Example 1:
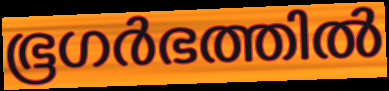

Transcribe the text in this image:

ഭൂഗർഭത്തിൽ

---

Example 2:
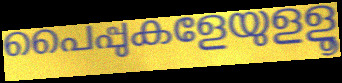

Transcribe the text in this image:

പൈപ്പുകളേയുളളൂ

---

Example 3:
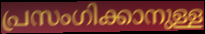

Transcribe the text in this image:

പ്രസംഗിക്കാനുള്ള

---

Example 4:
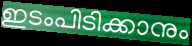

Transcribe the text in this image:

ഇടംപിടിക്കാനും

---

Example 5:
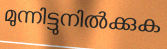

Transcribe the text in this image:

മുന്നിട്ടുനിൽക്കുക